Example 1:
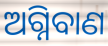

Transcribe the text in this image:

ଅଗ୍ନିବାଣ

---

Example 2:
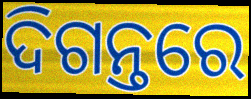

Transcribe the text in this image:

ଦିଗନ୍ତରେ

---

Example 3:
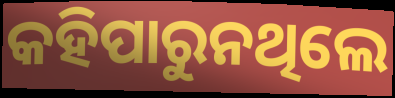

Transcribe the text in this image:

କହିପାରୁନଥିଲେ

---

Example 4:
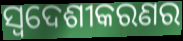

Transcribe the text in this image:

ସ୍ୱଦେଶୀକରଣର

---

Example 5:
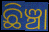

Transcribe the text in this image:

ଛିଞ୍ଚା